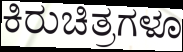
ಕಿರುಚಿತ್ರಗಳೂ